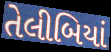
તેલીબિયાં